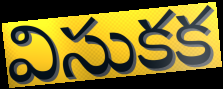
విసుకక